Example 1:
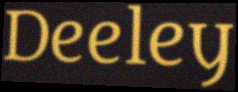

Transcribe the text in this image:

Deeley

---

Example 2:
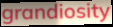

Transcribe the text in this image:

grandiosity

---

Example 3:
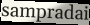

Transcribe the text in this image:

sampradai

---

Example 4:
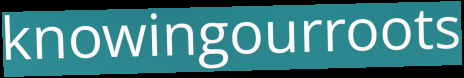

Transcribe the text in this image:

knowingourroots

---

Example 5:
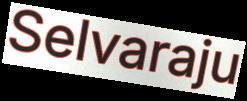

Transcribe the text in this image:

Selvaraju